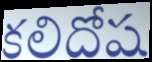
కలిదోష